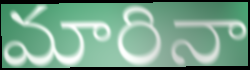
మారినా